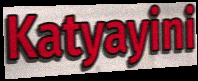
Katyayini